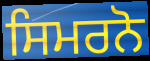
ਸਿਮਰਨੋ